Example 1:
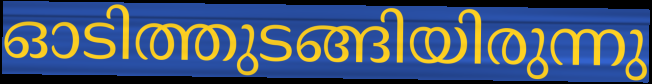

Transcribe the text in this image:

ഓടിത്തുടങ്ങിയിരുന്നു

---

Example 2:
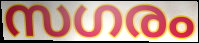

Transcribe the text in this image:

സഗരം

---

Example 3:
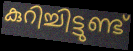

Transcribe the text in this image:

കുറിച്ചിട്ടുണ്ട്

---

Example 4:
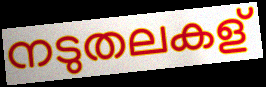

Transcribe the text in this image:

നടുതലകള്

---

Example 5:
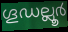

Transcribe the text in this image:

ഗൂഡല്ലൂർ